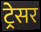
ट्रेसर